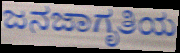
ಜನಜಾಗೃತಿಯ